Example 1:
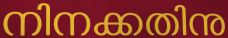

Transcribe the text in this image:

നിനക്കതിനു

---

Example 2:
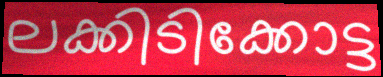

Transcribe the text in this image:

ലക്കിടിക്കോട്ട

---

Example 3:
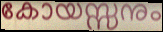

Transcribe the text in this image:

കോയസ്സനും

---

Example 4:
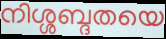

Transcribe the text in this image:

നിശ്ശബ്ദതയെ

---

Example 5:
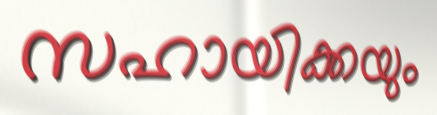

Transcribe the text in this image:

സഹായിക്കയും